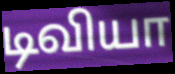
டிவியா